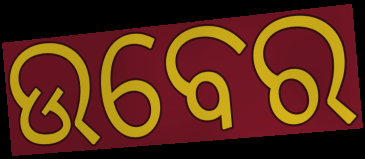
ଉବେର